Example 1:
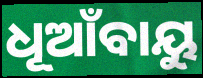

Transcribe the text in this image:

ଧୂଆଁବାୟୁ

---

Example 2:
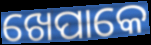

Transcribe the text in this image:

ଖେପାକେ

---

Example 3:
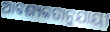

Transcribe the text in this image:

ଆବଶ୍ୟକତାନୁଯାୟୀ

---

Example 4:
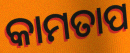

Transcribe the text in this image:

କାମତାପ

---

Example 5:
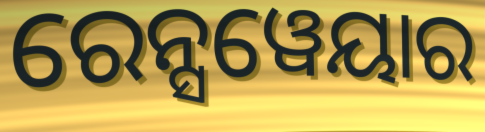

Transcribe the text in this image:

ରେନ୍ସୱେୟାର